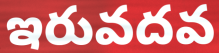
ఇరువదవ